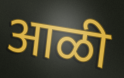
आळी